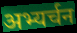
अभ्यर्चन